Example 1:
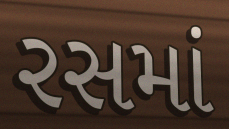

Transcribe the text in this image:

રસમાં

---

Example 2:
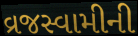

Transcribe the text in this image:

વ્રજસ્વામીની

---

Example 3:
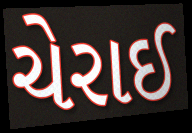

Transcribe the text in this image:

ચેરાઈ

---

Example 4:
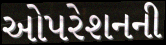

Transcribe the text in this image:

ઓપરેશનની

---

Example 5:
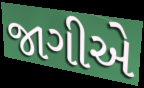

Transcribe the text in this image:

જાગીએ